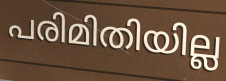
പരിമിതിയില്ല